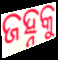
ଜହ୍ନକୁ